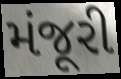
મંજૂરી